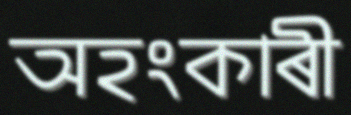
অহংকাৰী